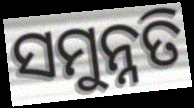
ସମୁନ୍ନତି